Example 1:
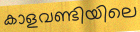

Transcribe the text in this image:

കാളവണ്ടിയിലെ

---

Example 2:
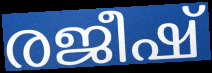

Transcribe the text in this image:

രജീഷ്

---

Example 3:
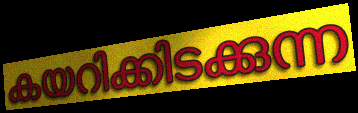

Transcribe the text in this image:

കയറിക്കിടക്കുന്ന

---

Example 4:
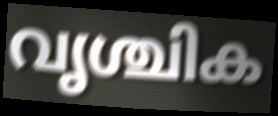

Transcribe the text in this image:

വൃശ്ചിക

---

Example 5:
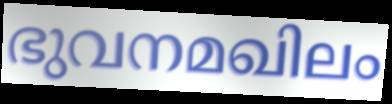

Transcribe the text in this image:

ഭുവനമഖിലം